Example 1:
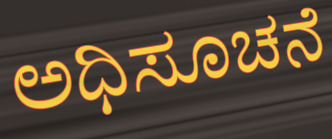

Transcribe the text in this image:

ಅಧಿಸೂಚನೆ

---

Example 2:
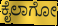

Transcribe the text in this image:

ಕೈಲಾಗೋ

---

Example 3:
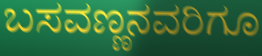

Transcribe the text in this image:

ಬಸವಣ್ಣನವರಿಗೂ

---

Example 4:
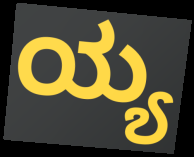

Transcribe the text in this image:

ಯ್ಯ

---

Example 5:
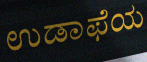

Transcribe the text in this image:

ಉಡಾಫೆಯ